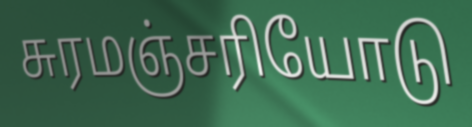
சுரமஞ்சரியோடு